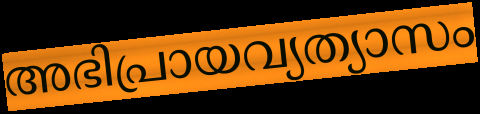
അഭിപ്രായവ്യത്യാസം